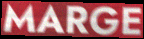
MARGE